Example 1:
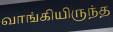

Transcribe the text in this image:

வாங்கியிருந்த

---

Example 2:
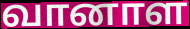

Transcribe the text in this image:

வானாள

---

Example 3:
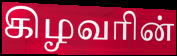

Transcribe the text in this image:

கிழவரின்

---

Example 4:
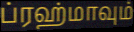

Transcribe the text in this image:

ப்ரஹ்மாவும்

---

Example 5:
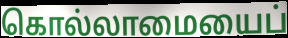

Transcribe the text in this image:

கொல்லாமையைப்